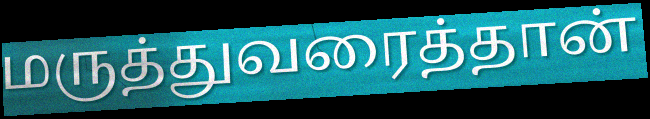
மருத்துவரைத்தான்